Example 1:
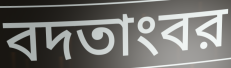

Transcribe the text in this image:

বদতাংবর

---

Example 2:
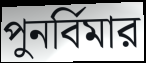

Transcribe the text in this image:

পুনর্বিমার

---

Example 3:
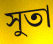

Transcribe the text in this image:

সুতা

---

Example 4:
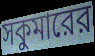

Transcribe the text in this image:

সকুমারের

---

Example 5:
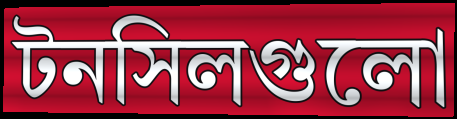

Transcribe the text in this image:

টনসিলগুলো